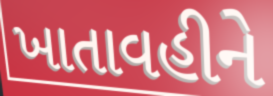
ખાતાવહીને